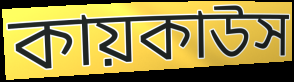
কায়কাউস